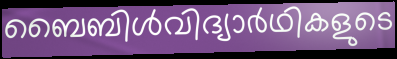
ബൈബിൾവിദ്യാർഥികളുടെ